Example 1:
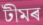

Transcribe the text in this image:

টীমৰ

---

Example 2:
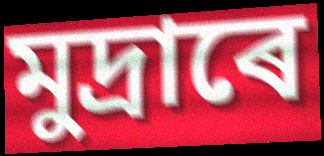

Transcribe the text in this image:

মুদ্ৰাৰে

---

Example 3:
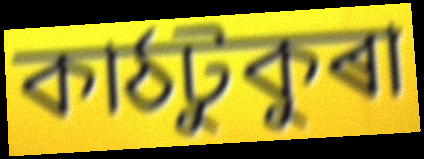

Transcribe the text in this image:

কাঠটুকুৰা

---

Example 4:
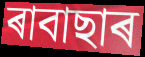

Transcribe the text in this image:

ৰাবাছাৰ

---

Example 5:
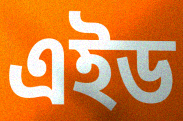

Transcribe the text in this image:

এইড